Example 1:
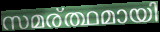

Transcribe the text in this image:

സമര്ത്ഥമായി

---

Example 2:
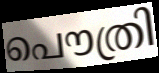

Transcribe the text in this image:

പൌത്രി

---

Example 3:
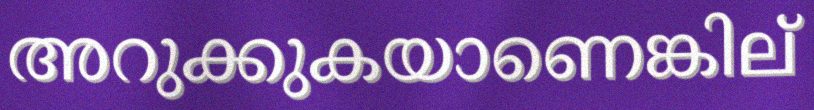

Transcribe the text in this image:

അറുക്കുകയാണെങ്കില്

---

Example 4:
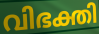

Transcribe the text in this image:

വിഭക്തി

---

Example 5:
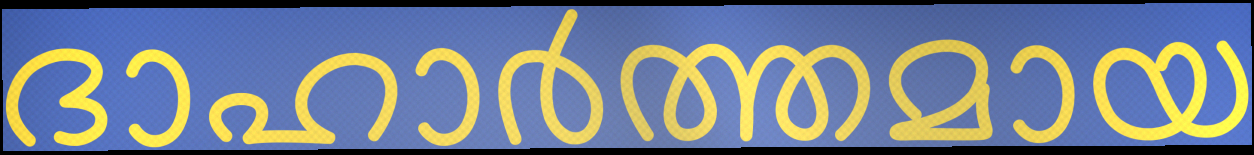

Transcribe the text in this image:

ദാഹാർത്തമായ